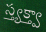
స్త్యక్త్వా